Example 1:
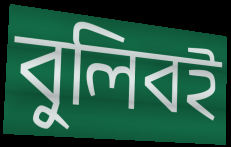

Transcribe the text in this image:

বুলিবই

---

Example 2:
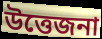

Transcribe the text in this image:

উত্তেজনা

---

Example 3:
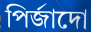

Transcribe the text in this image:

পিৰ্জাদো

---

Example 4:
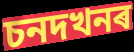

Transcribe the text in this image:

চনদখনৰ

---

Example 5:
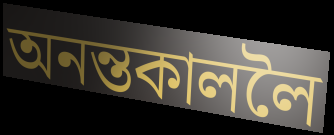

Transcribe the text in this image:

অনন্তকাললৈ